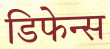
डिफेन्स